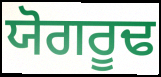
ਯੋਗਰੂਢ